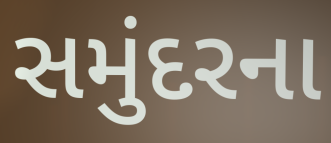
સમુંદરના